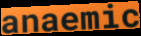
anaemic